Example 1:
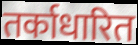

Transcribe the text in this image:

तर्काधारित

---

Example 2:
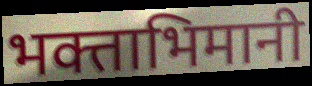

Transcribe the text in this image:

भक्ताभिमानी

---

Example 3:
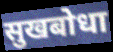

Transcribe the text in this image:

सुखबोधा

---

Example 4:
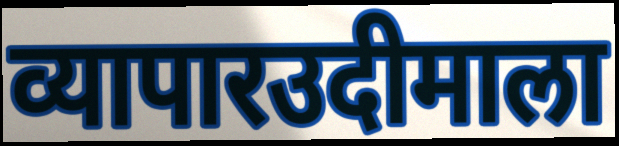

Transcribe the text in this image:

व्यापारउदीमाला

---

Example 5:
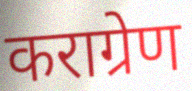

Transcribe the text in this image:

कराग्रेण